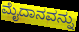
ಮೈದಾನವನ್ನು